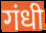
गंधी